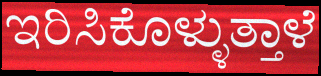
ಇರಿಸಿಕೊಳ್ಳುತ್ತಾಳೆ